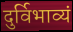
दुर्विभाव्यं